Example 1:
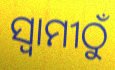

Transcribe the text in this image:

ସ୍ୱାମୀଠୁଁ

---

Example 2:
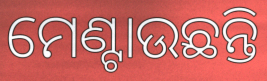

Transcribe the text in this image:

ମେଣ୍ଟାଉଛନ୍ତି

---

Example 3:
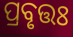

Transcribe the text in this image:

ପ୍ରବୃତ୍ତଃ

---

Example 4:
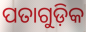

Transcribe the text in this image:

ପତାଗୁଡ଼ିକ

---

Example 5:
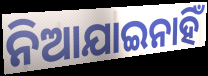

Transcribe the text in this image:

ନିଆଯାଇନାହିଁ